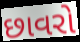
છાવરો